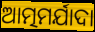
ଆତ୍ମମର୍ଯାଦା